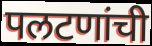
पलटणांची